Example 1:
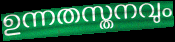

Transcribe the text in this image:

ഉന്നതസ്തനവും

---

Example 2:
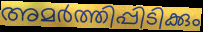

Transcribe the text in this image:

അമർത്തിപ്പിടിക്കും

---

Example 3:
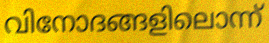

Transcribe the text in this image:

വിനോദങ്ങളിലൊന്ന്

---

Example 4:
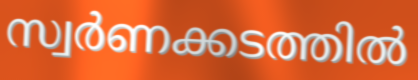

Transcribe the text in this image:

സ്വർണക്കടത്തിൽ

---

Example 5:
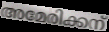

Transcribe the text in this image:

അമേരിക്കന്